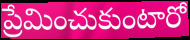
ప్రేమించుకుంటారో